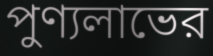
পুণ্যলাভের